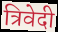
त्रिवेदी